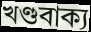
খণ্ডবাক্য